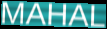
MAHAL